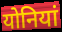
योनियां